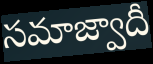
సమాజ్వాదీ